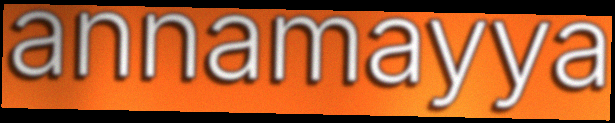
annamayya